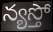
న్యస్తో